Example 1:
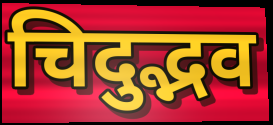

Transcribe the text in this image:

चिदुद्भव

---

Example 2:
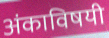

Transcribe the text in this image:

अंकाविषयी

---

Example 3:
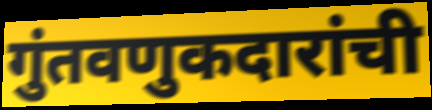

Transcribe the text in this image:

गुंतवणुकदारांची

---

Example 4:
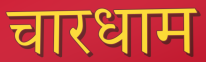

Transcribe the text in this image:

चारधाम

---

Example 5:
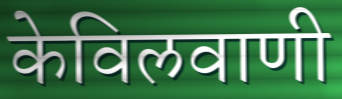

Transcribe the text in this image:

केविलवाणी